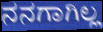
ನನಗಾಗಿಲ್ಲ